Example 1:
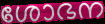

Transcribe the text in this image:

ശോഭന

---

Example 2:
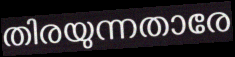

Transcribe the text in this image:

തിരയുന്നതാരേ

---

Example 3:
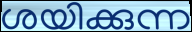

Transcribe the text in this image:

ശയിക്കുന്ന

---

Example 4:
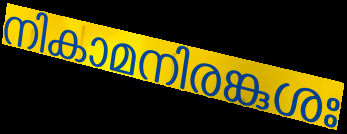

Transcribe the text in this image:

നികാമനിരങ്കുശഃ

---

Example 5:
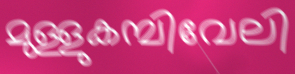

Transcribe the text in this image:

മുള്ളുകമ്പിവേലി